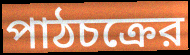
পাঠচক্রের